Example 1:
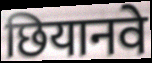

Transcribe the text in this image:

छियानवे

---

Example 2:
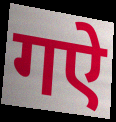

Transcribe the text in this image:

गऐ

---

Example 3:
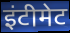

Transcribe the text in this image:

इंटीमेट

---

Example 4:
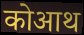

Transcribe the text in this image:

कोआथ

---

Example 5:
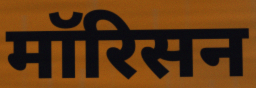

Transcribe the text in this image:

मॉरिसन